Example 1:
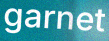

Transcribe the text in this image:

garnet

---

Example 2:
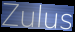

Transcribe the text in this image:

Zulus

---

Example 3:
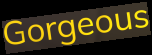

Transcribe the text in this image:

Gorgeous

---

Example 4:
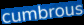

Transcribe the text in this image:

cumbrous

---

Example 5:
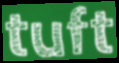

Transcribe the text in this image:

tuft